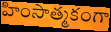
హింసాత్మకంగా